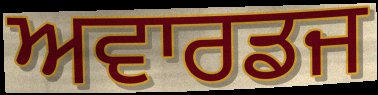
ਅਵਾਰਡਜ